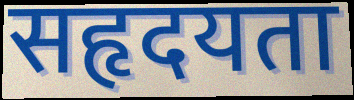
सहृदयता